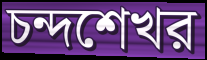
চন্দশেখর